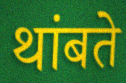
थांबते